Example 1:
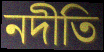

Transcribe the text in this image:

নদীতি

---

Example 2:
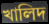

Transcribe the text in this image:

খালিদ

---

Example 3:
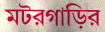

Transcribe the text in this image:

মটরগাড়ির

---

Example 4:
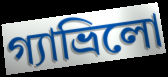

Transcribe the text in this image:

গ্যাভ্রিলো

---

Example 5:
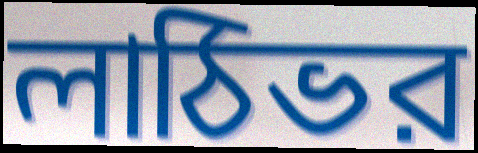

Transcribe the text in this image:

লাঠিভর